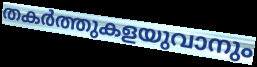
തകർത്തുകളയുവാനും